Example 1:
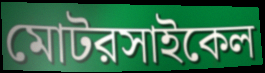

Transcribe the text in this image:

মোটরসাইকেল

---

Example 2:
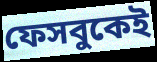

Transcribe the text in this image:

ফেসবুকেই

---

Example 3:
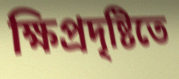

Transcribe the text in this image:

ক্ষিপ্রদৃষ্টিতে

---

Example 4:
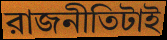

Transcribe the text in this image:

রাজনীতিটাই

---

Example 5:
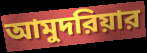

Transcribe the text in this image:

আমুদরিয়ার